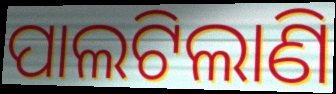
ପାଲଟିଲାଣି